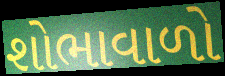
શોભાવાળો